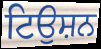
ਟਿਉਸ਼ਨ